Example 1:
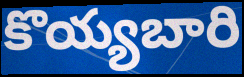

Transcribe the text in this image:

కొయ్యబారి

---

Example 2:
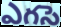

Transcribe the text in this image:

ఎగసె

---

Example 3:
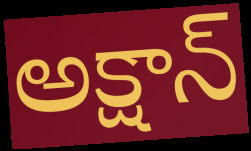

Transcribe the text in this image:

అక్షాన్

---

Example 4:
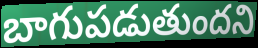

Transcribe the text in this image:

బాగుపడుతుందని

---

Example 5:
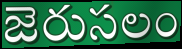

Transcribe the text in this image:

జెరుసలం